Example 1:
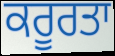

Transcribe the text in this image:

ਕਰੂਰਤਾ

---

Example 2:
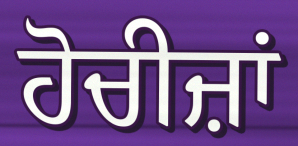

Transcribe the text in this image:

ਹੋਚੀਜ਼ਾਂ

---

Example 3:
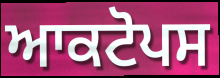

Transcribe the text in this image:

ਆਕਟੋਪਸ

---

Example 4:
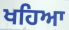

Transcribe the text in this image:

ਖਹਿਆ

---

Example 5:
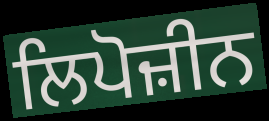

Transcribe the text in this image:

ਲਿਪੋਜ਼ੀਨ